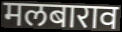
मलबाराव